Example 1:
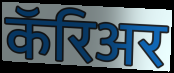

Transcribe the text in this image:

कॅरिअर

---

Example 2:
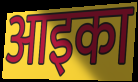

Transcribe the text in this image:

आइका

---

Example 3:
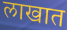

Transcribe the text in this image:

लाखात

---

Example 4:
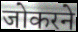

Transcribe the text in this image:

जोकरने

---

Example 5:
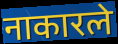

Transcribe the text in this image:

नाकारले